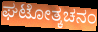
ಘಟೋತ್ಕಚನಂ